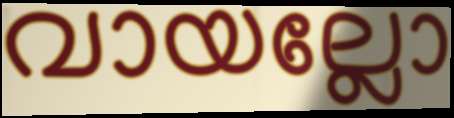
വായല്ലോ